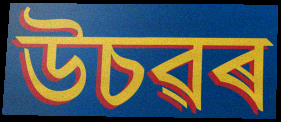
উচৱৰ